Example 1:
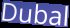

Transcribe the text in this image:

Dubal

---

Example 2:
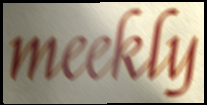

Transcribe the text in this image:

meekly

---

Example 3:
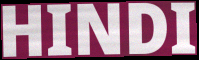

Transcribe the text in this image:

HINDI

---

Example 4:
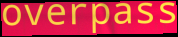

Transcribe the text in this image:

overpass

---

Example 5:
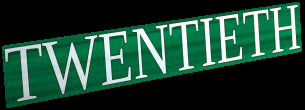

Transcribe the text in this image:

TWENTIETH